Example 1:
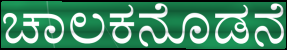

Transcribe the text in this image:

ಚಾಲಕನೊಡನೆ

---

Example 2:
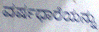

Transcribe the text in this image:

ವರ್ಷಧಾರೆಯನ್ನು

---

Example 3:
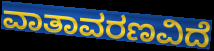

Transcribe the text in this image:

ವಾತಾವರಣವಿದೆ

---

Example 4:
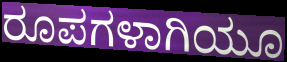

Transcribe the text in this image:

ರೂಪಗಳಾಗಿಯೂ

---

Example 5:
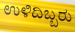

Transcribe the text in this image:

ಉಳಿದಿಬ್ಬರು